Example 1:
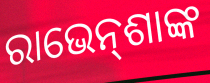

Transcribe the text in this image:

ରାଭେନ୍‌ଶାଙ୍କ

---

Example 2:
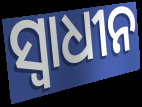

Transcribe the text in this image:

ସ୍ଵାଧୀନ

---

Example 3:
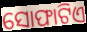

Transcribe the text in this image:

ସୋଫାଟିଏ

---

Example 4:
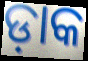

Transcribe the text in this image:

ଡ଼ାକ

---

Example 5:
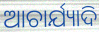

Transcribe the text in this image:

ଆଚାର୍ଯ୍ୟାଦି